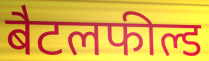
बैटलफील्ड